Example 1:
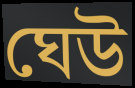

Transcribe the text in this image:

ঘেউ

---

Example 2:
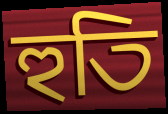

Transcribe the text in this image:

হুতি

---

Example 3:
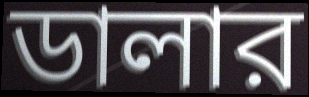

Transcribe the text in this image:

ডালার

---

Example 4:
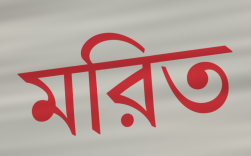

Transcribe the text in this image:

মরিত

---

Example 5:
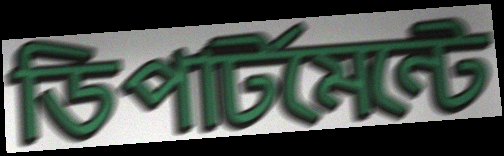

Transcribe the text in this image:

ডিপার্টমেন্টে